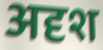
अदृश